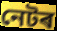
নেটৰ